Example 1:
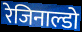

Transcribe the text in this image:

रेजिनाल्डो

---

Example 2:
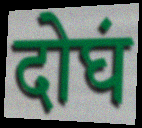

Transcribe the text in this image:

दोघं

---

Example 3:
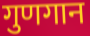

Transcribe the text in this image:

गुणगान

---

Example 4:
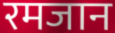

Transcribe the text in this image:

रमजान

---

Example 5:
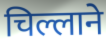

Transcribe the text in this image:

चिल्लाने